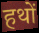
हथों